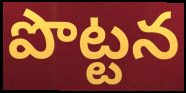
పొట్టన